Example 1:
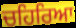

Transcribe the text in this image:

ਚਹਿਰਿਆ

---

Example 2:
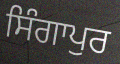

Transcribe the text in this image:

ਸਿੰਗਾਪੁਰ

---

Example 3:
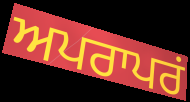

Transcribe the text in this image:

ਅਪਰਾਪਰਂ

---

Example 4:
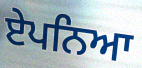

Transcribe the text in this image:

ਏਪਨਿਆ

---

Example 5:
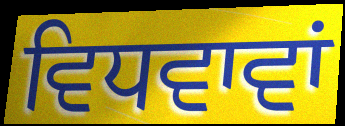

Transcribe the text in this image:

ਵਿਧਵਾਵਾਂ